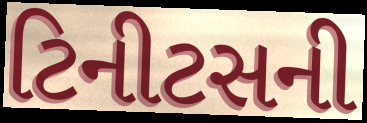
ટિનીટસની